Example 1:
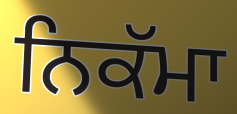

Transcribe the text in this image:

ਨਿਕੱਮਾ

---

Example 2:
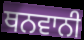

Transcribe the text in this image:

ਥਨਵਾਨੀ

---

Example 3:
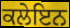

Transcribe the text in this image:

ਕਲੇਇਨ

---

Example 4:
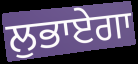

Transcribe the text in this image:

ਲੁਭਾਏਗਾ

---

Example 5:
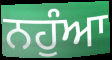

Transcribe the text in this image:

ਨਹੁੰਆ